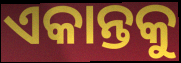
ଏକାନ୍ତକୁ